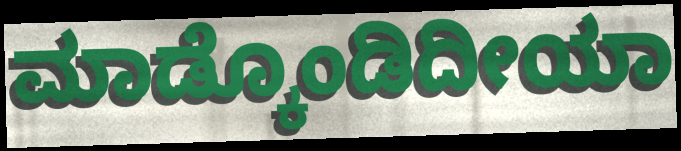
ಮಾಡ್ಕೊಂಡಿದೀಯಾ